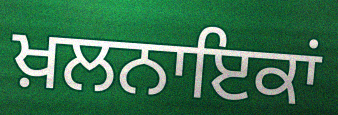
ਖ਼ਲਨਾਇਕਾਂ